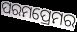
ପରମପ୍ରେମର